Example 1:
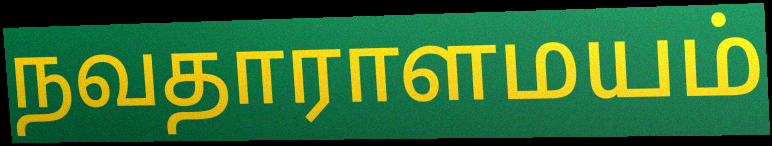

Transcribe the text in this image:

நவதாராளமயம்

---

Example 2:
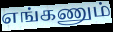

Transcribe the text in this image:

எங்கணும்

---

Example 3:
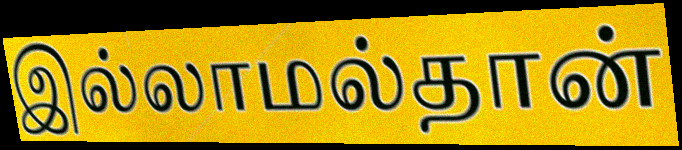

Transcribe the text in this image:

இல்லாமல்தான்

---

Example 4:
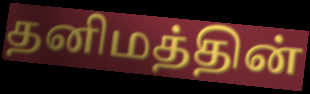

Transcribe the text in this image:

தனிமத்தின்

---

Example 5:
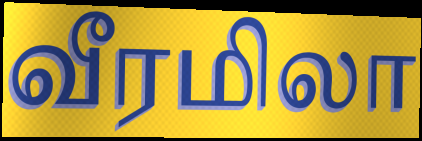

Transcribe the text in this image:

வீரமிலா